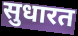
सुधारत